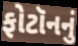
ફોટૉનનું